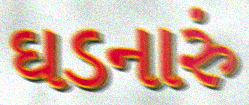
ઘડનારું